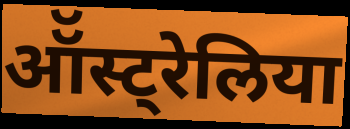
ऑॅस्ट्रेलिया